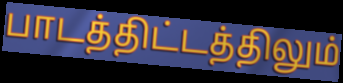
பாடத்திட்டத்திலும்